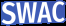
SWAC